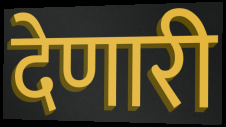
देणारी